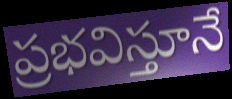
ప్రభవిస్తూనే